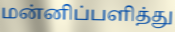
மன்னிப்பளித்து